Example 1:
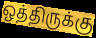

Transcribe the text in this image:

ஒத்திருக்கு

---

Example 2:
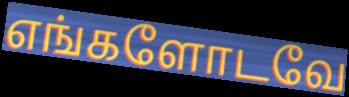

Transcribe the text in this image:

எங்களோடவே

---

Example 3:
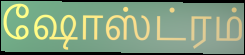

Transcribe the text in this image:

ஷோஸ்ட்ரம்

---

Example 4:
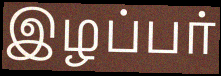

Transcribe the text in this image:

இழப்பர்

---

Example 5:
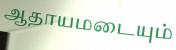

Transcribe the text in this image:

ஆதாயமடையும்